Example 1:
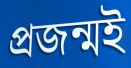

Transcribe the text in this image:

প্ৰজন্মই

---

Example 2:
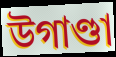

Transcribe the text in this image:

উগাণ্ডা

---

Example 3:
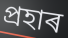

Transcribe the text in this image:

প্ৰহাৰ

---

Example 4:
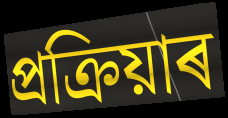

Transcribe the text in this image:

প্ৰক্ৰিয়াৰ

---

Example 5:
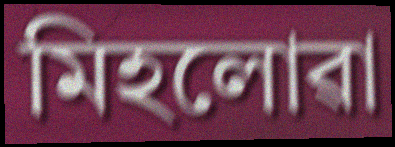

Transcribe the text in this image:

মিহলোৱা